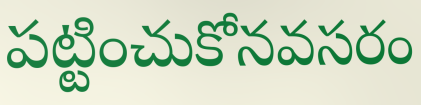
పట్టించుకోనవసరం